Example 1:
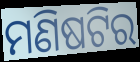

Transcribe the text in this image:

ମଣିଷଟିର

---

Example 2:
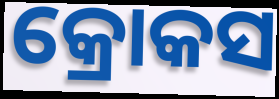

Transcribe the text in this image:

କ୍ରୋକସ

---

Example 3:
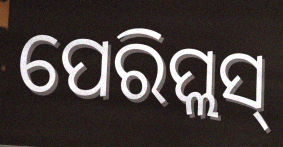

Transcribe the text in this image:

ପେରିପ୍ଲସ୍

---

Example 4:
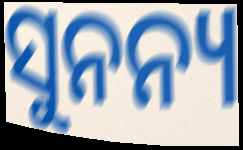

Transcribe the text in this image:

ସୁନନ୍ୟ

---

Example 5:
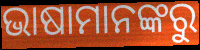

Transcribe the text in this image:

ଭାଷାମାନଙ୍କରୁ